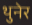
थुनेर